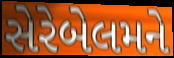
સેરેબેલમને